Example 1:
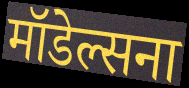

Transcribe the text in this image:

मॉडेल्सना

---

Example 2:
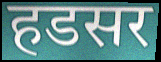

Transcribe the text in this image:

हडसर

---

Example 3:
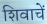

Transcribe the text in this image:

शिवाचें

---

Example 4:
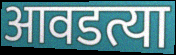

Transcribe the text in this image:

आवडत्या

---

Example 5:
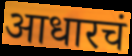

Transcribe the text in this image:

आधारचं